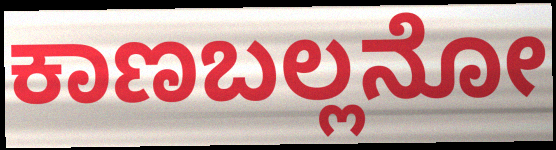
ಕಾಣಬಲ್ಲನೋ